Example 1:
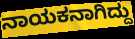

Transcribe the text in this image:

ನಾಯಕನಾಗಿದ್ದು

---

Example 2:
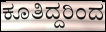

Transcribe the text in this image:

ಕೂತಿದ್ದರಿಂದ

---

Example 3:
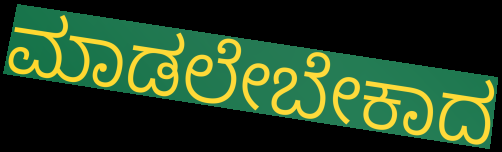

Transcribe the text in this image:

ಮಾಡಲೇಬೇಕಾದ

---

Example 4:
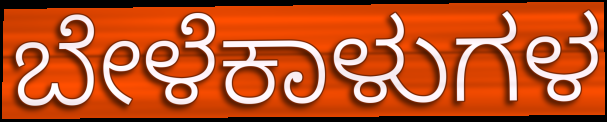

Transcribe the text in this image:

ಬೇಳೆಕಾಳುಗಳ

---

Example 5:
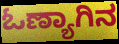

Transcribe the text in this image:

ಓಣ್ಯಾಗಿನ